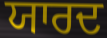
ਯਾਰਦ